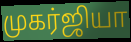
முகர்ஜியா